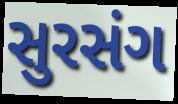
સુરસંગ